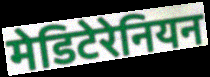
मेडिटेरेनियन